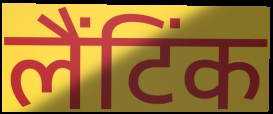
लैंटिंक